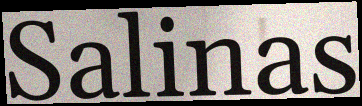
Salinas